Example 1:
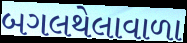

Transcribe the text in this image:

બગલથેલાવાળા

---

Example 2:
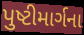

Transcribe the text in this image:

પુષ્ટીમાર્ગના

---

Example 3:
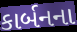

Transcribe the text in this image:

કાર્બનના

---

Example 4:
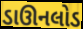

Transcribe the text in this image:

ડાઊનલોડ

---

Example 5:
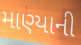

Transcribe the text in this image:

માણ્યાની